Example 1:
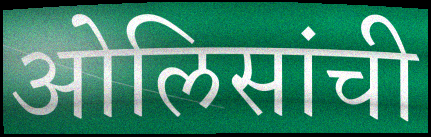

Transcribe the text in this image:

ओलिसांची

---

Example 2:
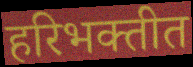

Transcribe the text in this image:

हरिभक्तीत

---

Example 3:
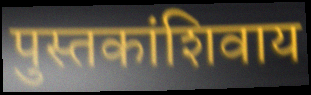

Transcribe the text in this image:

पुस्तकांशिवाय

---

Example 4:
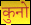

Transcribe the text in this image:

कुनो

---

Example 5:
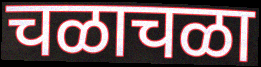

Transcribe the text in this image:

चळाचळा